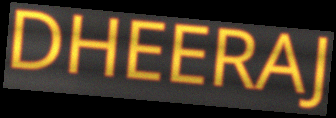
DHEERAJ